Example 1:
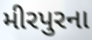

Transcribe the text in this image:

મીરપુરના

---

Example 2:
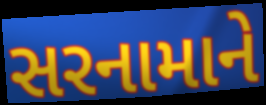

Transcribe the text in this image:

સરનામાને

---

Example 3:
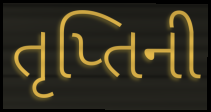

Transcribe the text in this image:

તૃપ્તિની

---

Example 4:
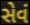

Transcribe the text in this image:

સેવં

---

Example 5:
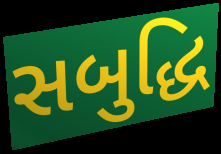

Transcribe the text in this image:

સબુદ્ધિ